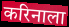
करिनाला